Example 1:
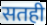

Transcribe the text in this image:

सतही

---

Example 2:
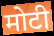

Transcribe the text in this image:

मोटी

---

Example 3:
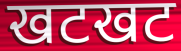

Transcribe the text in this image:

खटखट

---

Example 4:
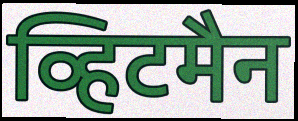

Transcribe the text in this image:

व्हिटमैन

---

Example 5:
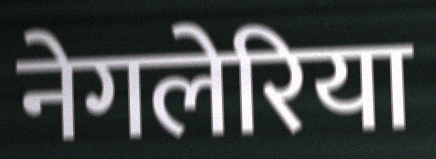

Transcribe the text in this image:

नेगलेरिया